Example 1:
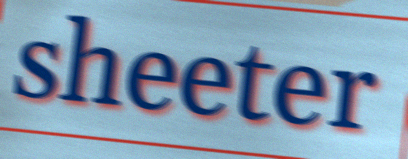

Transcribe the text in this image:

sheeter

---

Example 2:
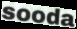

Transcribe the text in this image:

sooda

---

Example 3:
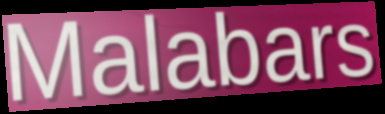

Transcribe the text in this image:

Malabars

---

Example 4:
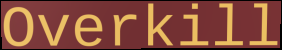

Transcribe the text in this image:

Overkill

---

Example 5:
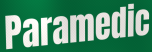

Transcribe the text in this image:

Paramedic